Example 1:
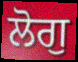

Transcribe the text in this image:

ਲੋਗੁ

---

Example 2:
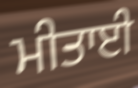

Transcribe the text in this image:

ਮੀਤਾਈ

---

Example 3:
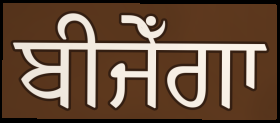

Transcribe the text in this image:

ਬੀਜੇਁਗਾ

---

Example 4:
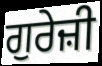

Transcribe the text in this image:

ਗੁਰੇਜ਼ੀ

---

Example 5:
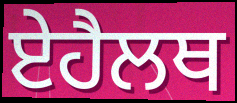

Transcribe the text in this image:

ਏਹੈਲਥ